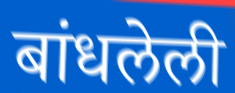
बांधलेली